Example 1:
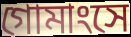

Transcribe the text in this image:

গোমাংসে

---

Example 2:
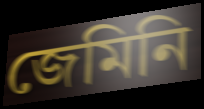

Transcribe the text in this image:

জেমিনি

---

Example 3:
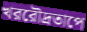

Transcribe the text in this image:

খররৌদ্রতাপে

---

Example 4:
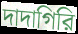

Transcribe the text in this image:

দাদাগিরি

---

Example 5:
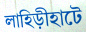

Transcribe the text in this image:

লাহিড়ীহাটে